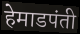
हेमाडपंती